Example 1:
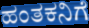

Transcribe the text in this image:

ಹಂತಕನಿಗೆ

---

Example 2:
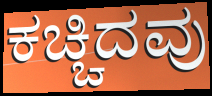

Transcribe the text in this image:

ಕಚ್ಚಿದವು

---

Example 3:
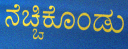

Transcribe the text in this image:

ನೆಚ್ಚಿಕೊಂಡು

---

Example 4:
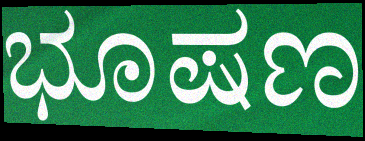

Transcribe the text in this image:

ಭೂಷಣ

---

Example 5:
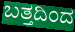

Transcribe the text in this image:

ಬತ್ತದಿಂದ